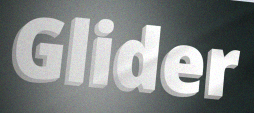
Glider